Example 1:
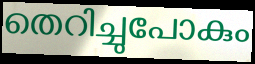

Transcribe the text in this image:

തെറിച്ചുപോകും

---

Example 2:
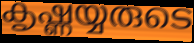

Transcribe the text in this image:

കൃഷ്ണയ്യരുടെ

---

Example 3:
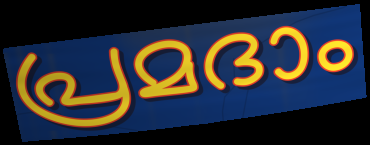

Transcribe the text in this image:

പ്രമദാം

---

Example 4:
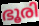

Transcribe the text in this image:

ഭൂരി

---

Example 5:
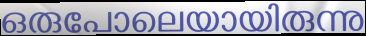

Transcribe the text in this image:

ഒരുപോലെയായിരുന്നു